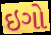
ઇગો